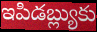
ఇపిడబ్ల్యుకు